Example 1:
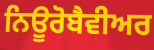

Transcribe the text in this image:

ਨਿਊਰੋਬੈਵੀਅਰ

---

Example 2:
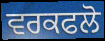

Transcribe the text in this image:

ਵਰਕਫਲੋ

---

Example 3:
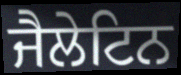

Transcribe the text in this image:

ਜੈਲੇਟਿਨ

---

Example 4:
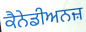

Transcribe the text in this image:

ਕੈਨੇਡੀਅਨਜ਼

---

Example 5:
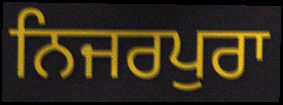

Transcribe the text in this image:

ਨਿਜਰਪੁਰਾ